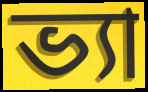
ভ্যা